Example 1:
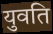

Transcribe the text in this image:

युवति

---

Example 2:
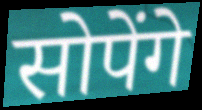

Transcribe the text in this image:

सोपेंगे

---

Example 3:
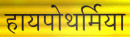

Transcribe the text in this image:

हायपोथर्मिया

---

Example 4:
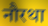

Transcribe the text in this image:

नौरथा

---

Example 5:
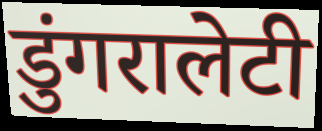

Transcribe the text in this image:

डुंगरालेटी